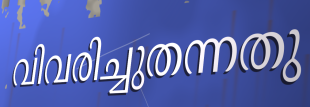
വിവരിച്ചുതന്നതു